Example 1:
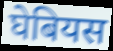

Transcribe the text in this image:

घेबियस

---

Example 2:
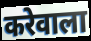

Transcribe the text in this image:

करेवाला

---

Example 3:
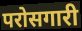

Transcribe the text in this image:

परोसगारी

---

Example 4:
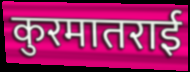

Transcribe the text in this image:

कुरमातराई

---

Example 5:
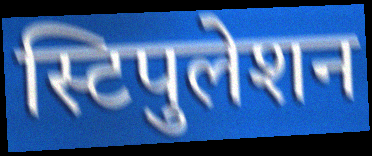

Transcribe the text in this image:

स्टिपुलेशन